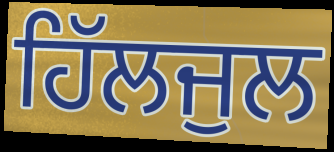
ਹਿੱਲਜੁਲ